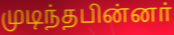
முடிந்தபின்னர்